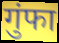
गुंफा